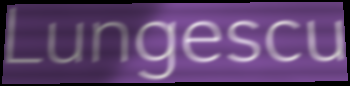
Lungescu